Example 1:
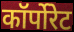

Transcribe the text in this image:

कॉर्पोरेट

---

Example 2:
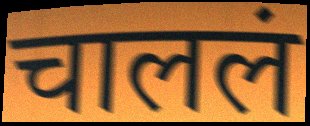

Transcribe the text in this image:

चाललं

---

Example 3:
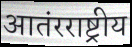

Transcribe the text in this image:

आतंरराष्ट्रीय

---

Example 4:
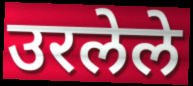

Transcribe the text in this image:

उरलेले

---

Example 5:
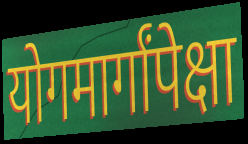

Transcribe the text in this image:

योगमार्गांपेक्षा